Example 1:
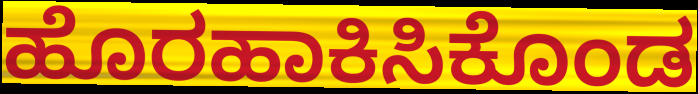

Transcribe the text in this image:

ಹೊರಹಾಕಿಸಿಕೊಂಡ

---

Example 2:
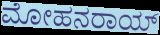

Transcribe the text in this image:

ಮೋಹನರಾಯ್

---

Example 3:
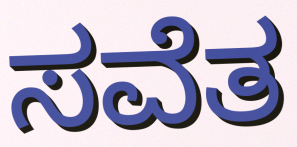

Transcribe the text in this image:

ಸವೆತ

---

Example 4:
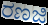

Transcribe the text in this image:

ರಣಜಿ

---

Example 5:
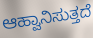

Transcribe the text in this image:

ಆಹ್ವಾನಿಸುತ್ತದೆ